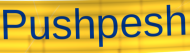
Pushpesh